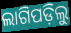
ଲାଗିପଡ଼ିଲୁ